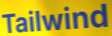
Tailwind